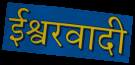
ईश्वरवादी